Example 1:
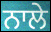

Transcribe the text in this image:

ਨਾਲੇ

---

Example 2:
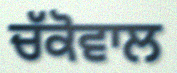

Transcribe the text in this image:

ਚੱਕੋਵਾਲ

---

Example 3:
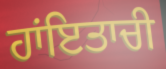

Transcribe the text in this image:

ਹਾਂਇਤਾਚੀ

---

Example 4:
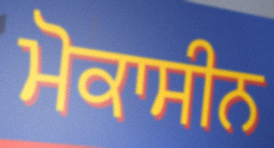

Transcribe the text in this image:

ਮੋਕਾਸੀਨ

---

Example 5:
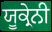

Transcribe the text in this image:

ਯੂਕ੍ਰੇਨੀ